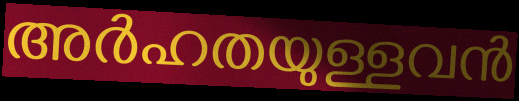
അർഹതയുള്ളവൻ